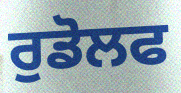
ਰੁਡੋਲਫ